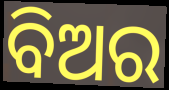
ବିଅର